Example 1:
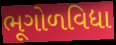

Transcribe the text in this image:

ભૂગોળવિદ્યા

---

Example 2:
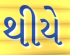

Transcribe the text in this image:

થીયે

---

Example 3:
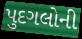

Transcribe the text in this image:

પુદગલોની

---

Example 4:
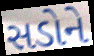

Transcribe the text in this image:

સડોને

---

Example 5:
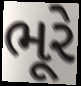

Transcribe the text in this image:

ભૂરે